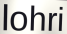
lohri